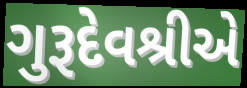
ગુરૂદેવશ્રીએ